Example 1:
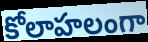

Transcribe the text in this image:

కోలాహలంగా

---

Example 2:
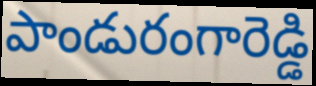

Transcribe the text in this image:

పాండురంగారెడ్డి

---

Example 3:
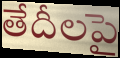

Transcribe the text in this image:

తేదీలపై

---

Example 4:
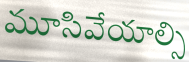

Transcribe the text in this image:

మూసివేయాల్సి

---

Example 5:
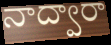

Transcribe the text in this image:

నాద్వారా